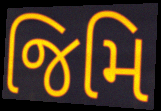
જિમિ